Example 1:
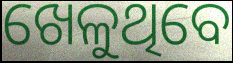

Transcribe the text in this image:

ଖେଳୁଥିବେ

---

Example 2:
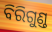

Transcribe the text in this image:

ବିରିଗୁଣ୍ଡ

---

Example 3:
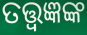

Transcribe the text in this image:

ତତ୍ତ୍ଵଜ୍ଞଙ୍କ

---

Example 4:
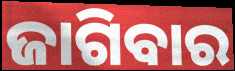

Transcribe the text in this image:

ଜାଗିବାର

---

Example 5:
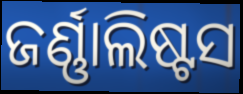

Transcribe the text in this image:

ଜର୍ଣ୍ଣାଲିଷ୍ଟସ